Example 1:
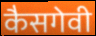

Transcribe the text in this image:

कैसगेवी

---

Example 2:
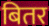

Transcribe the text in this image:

बितर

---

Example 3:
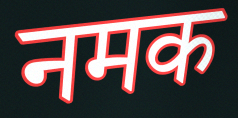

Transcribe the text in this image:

नमक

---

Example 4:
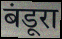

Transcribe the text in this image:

बंडूरा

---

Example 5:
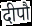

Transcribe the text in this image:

दीपौ